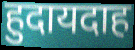
हुदायदाह